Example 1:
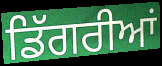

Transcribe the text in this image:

ਡਿੱਗਰੀਆਂ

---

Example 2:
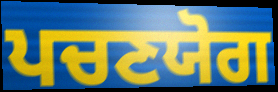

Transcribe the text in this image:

ਪਚਣਯੋਗ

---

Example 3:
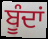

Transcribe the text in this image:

ਬੂੰਦਾਂ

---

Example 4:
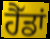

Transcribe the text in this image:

ਹੈੱਡਾਂ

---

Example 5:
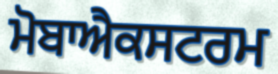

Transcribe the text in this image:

ਮੋਬਾਐਕਸਟਰਮ